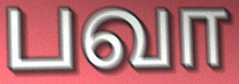
பவா